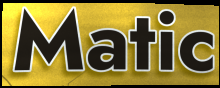
Matic